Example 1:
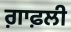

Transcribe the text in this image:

ਗ਼ਾਫ਼ਲੀ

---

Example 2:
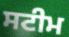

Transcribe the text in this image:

ਸਟੀਮ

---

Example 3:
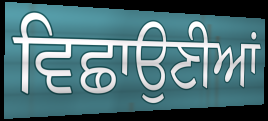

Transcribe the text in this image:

ਵਿਛਾਉਣੀਆਂ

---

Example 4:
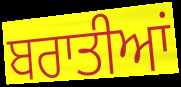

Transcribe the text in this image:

ਬਰਾਤੀਆਂ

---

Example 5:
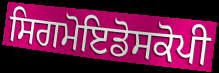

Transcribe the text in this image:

ਸਿਗਮੋਇਡੋਸਕੋਪੀ